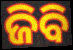
ଜିବି